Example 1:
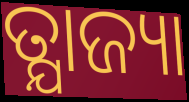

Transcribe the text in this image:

ତ୍ଯାଜ୍ୟା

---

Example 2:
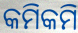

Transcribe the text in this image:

କମିକମି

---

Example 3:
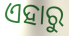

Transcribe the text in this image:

ଏହାରୁ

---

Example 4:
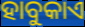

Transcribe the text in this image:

ହାବୁକାଏ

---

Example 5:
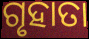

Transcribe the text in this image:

ଗୃହାତା